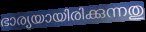
ഭാര്യയായിരിക്കുന്നതു